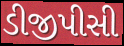
ડીજીપીસી